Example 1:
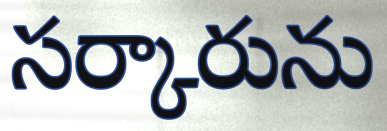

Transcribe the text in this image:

సర్కారును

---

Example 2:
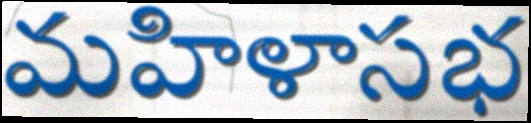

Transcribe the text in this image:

మహిళాసభ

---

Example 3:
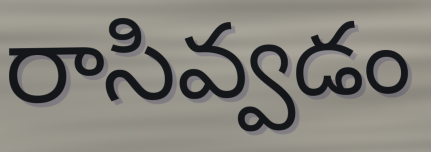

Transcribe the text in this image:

రాసివ్వడం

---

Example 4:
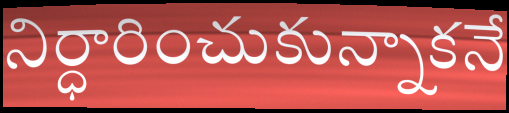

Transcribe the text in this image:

నిర్ధారించుకున్నాకనే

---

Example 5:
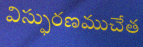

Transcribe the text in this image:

విస్ఫురణముచేత